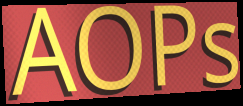
AOPs